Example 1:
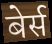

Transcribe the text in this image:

बेर्स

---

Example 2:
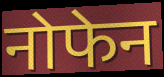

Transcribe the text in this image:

नोफेन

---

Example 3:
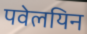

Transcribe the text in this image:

पवेलयिन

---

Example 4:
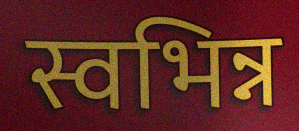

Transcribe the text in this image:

स्वभिन्न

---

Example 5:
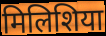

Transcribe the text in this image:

मिलिशिया